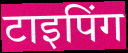
टाइपिंग